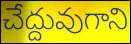
చేద్దువుగాని